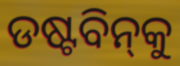
ଡଷ୍ଟବିନ୍‌କୁ